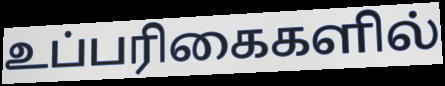
உப்பரிகைகளில்